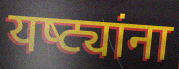
यष्ट्यांना